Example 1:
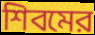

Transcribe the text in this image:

শিবমের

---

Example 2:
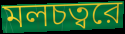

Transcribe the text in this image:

মলচত্বরে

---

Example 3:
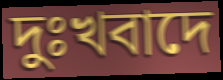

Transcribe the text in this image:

দুঃখবাদে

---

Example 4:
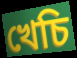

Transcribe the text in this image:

খেচি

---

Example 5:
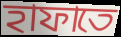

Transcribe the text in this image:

হাফাতে